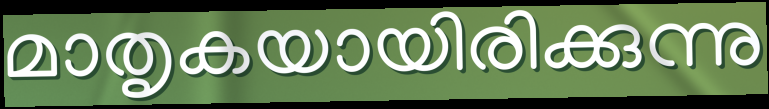
മാതൃകയായിരിക്കുന്നു